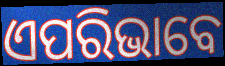
ଏପରିଭାବେ